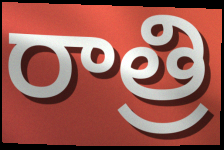
రాత్రి